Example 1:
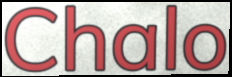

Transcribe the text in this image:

Chalo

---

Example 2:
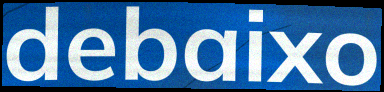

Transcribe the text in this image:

debaixo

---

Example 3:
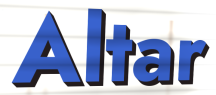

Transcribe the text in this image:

Altar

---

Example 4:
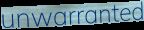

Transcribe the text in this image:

unwarranted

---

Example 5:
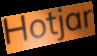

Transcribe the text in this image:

Hotjar